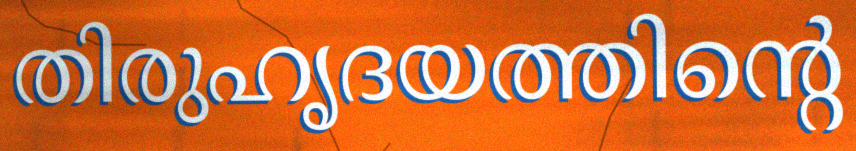
തിരുഹൃദയത്തിന്റെ